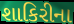
શાકિરીના